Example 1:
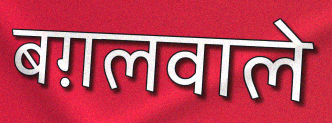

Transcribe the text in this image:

बग़लवाले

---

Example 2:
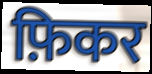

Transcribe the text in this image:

फ़िकर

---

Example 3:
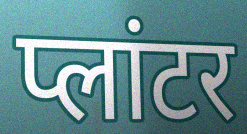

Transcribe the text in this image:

प्लांटर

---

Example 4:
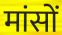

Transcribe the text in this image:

मांसों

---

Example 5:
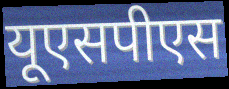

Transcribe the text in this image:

यूएसपीएस